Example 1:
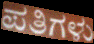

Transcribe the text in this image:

ಪತಿಗಳು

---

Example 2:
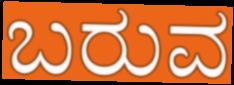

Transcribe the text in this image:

ಬರುವ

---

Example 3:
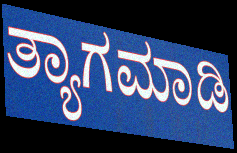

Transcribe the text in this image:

ತ್ಯಾಗಮಾಡಿ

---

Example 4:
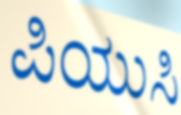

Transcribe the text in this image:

ಪಿಯುಸಿ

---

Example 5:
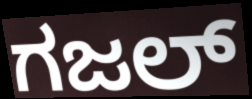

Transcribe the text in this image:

ಗಜಲ್